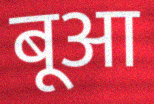
बूआ